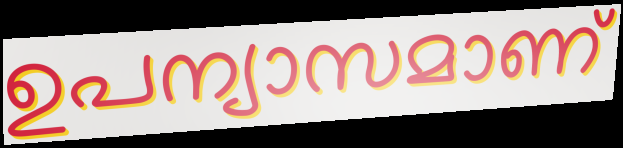
ഉപന്യാസമാണ്